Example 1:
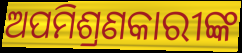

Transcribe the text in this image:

ଅପମିଶ୍ରଣକାରୀଙ୍କ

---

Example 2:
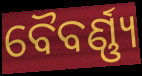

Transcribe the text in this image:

ବୈବର୍ଣ୍ଣ୍ୟ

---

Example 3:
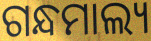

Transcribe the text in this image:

ଗନ୍ଧମାଲ୍ୟ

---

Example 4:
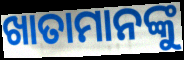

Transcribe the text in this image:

ଖାତାମାନଙ୍କୁ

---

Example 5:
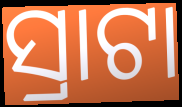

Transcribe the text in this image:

ସ୍ରାଟା